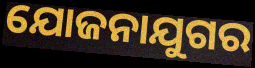
ଯୋଜନାଯୁଗର